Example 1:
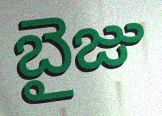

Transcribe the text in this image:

బైజు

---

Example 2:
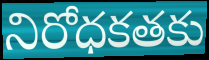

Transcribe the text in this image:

నిరోధకతకు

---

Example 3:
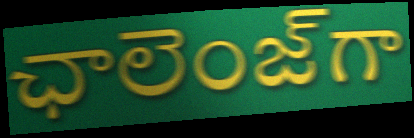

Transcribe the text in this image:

ఛాలెంజ్‌గా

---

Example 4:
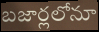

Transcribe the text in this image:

బజార్లలోనూ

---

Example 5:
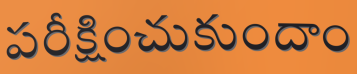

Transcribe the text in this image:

పరీక్షించుకుందాం